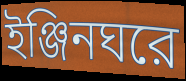
ইঞ্জিনঘরে